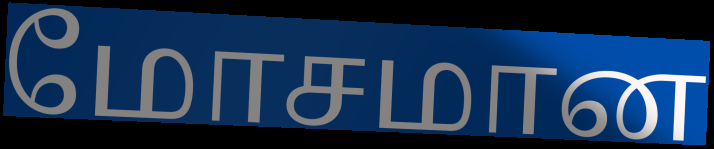
மோசமான